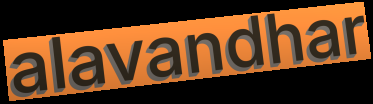
alavandhar